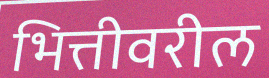
भित्तीवरील